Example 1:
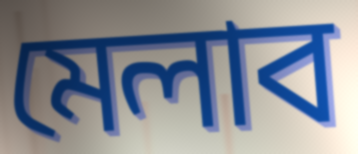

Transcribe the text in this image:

মেলাব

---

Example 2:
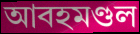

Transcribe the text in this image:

আবহমণ্ডল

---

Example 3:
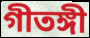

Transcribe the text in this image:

গীতঙ্গী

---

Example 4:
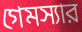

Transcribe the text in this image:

গেমস্যার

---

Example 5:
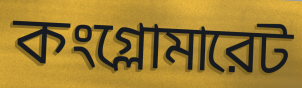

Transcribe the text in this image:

কংগ্লোমারেট